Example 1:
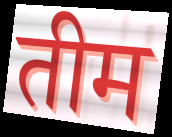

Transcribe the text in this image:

तीम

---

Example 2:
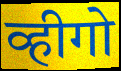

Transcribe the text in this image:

व्हीगो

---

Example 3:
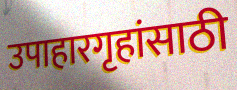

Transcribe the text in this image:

उपाहारगृहांसाठी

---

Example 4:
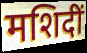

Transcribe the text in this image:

मशिदीं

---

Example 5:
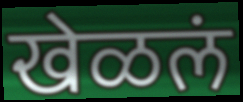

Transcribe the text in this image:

खेळलं